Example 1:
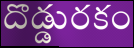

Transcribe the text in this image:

దొడ్డురకం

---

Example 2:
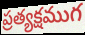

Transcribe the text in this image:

ప్రత్యక్షముగ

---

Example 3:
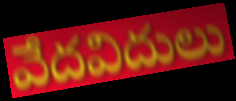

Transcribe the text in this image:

వేదవిదులు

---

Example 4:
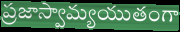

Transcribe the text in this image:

ప్రజాస్వామ్యయుతంగా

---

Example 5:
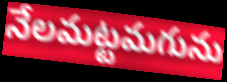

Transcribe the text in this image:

నేలమట్టమగును